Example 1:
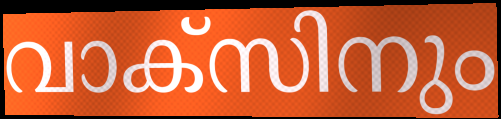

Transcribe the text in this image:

വാക്സിനും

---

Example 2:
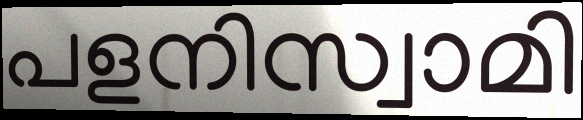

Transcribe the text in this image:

പളനിസ്വാമി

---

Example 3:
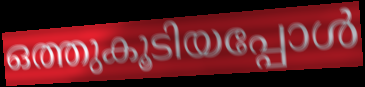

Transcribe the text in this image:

ഒത്തുകൂടിയപ്പോൾ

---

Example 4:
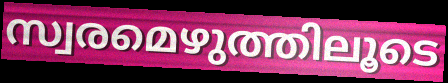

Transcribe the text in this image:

സ്വരമെഴുത്തിലൂടെ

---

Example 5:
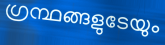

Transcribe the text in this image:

ഗ്രന്ഥങ്ങളുടേയും